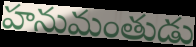
హనుమంతుడు